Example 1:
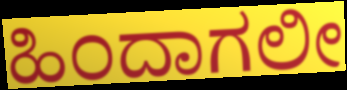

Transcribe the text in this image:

ಹಿಂದಾಗಲೀ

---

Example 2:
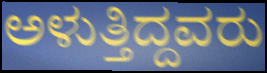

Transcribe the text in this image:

ಅಳುತ್ತಿದ್ದವರು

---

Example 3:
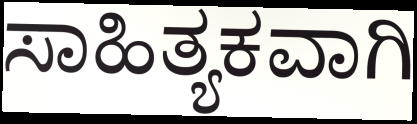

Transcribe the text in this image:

ಸಾಹಿತ್ಯಕವಾಗಿ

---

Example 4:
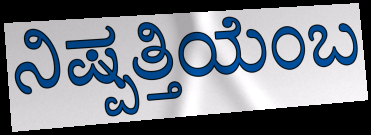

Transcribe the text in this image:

ನಿಷ್ಪತ್ತಿಯೆಂಬ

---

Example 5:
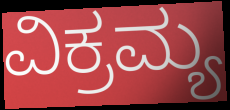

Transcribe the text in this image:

ವಿಕ್ರಮ್ಯ